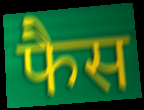
फैस